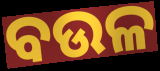
ବଉଳ